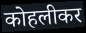
कोहलीकर